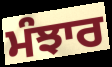
ਮੰਝਾਰ